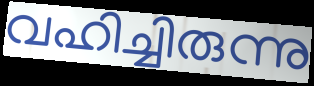
വഹിച്ചിരുന്നു